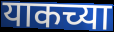
याकच्या